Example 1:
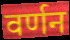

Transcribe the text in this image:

वर्णन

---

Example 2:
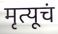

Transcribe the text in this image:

मृत्यूचं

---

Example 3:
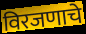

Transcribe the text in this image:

विरजणाचे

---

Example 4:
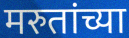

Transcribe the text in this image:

मरुतांच्या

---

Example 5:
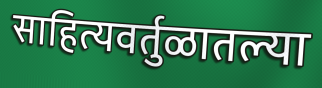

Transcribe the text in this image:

साहित्यवर्तुळातल्या